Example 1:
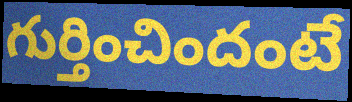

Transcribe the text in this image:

గుర్తించిందంటే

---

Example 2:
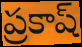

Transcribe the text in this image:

ప్రకాష్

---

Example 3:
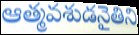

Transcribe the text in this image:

ఆత్మవశుడనైతిని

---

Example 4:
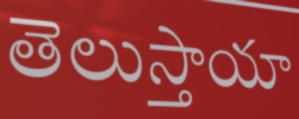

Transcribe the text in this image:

తెలుస్తాయా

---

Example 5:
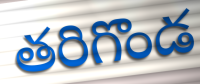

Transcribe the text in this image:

తరిగొండ